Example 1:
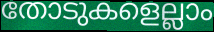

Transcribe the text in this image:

തോടുകളെല്ലാം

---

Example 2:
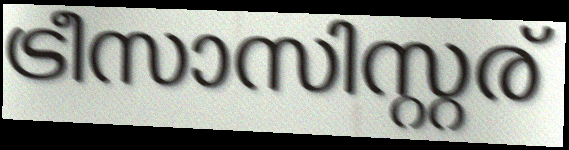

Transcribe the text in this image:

ട്രീസാസിസ്റ്റര്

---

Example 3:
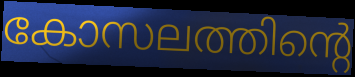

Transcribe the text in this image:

കോസലത്തിന്റെ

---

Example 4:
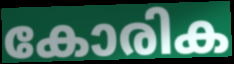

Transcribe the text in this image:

കോരിക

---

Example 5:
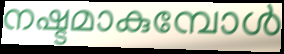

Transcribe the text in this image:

നഷ്ടമാകുമ്പോൾ